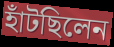
হাঁটছিলেন